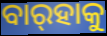
ବାର୍‍ହାକୁ